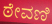
ಠೇವಣಿ